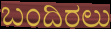
ಬಂದಿರಲು